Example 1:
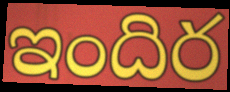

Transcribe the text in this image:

ఇందిర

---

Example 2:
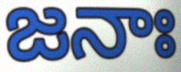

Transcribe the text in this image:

జనాః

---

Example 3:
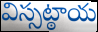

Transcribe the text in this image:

విస్సట్ఠాయ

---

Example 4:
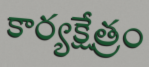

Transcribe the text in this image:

కార్యక్షేత్రం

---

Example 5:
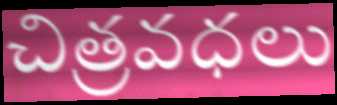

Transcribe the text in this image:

చిత్రవధలు